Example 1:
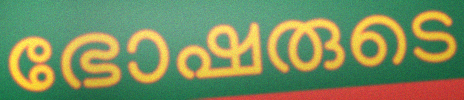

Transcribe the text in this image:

ഭോഷരുടെ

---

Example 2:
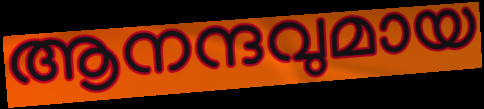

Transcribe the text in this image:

ആനന്ദവുമായ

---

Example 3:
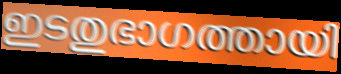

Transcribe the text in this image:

ഇടതുഭാഗത്തായി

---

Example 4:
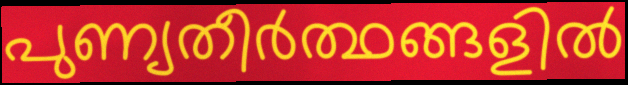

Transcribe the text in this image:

പുണ്യതീർത്ഥങ്ങളിൽ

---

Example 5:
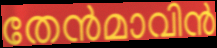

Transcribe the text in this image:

തേൻമാവിൻ